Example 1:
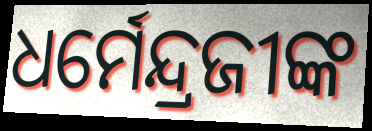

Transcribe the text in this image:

ଧର୍ମେନ୍ଦ୍ରଜୀଙ୍କ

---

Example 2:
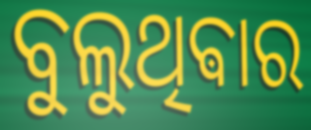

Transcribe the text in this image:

ବୁଲୁଥିଵାର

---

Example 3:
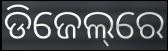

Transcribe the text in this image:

ଡିଜେଲ୍‌ରେ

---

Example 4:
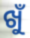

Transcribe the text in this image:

ଖୁଁ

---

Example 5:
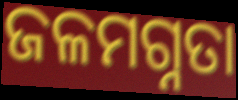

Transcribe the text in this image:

ଜଳମଗ୍ନତା